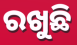
ରଖୁଛି